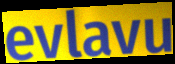
evlavu